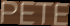
PETE